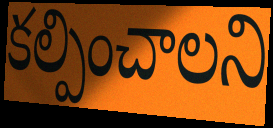
కల్పించాలని